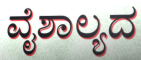
ವೈಶಾಲ್ಯದ